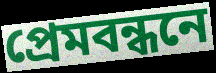
প্রেমবন্ধনে